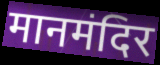
मानमंदिर